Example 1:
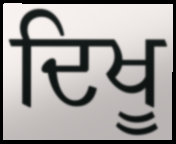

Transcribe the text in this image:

ਦਿਖੂ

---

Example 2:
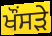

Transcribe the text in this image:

ਖੌਂਸੜੇ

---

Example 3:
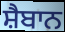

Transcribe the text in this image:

ਸ਼ੈਬਾਨ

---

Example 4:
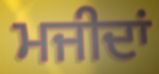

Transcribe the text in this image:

ਮਜੀਦਾਂ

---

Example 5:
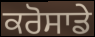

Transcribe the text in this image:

ਕਰੋਸਾਡੇ